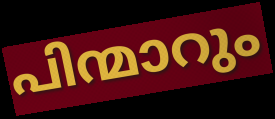
പിന്മാറും